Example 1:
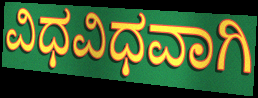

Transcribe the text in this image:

ವಿಧವಿಧವಾಗಿ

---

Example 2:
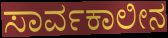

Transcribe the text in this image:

ಸಾರ್ವಕಾಲೀನ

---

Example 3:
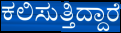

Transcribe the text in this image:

ಕಲಿಸುತ್ತಿದ್ದಾರೆ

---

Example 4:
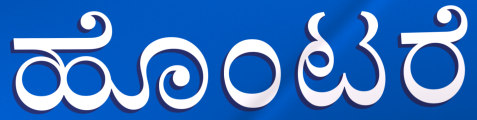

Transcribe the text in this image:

ಹೊಂಟರೆ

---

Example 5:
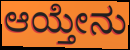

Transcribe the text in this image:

ಆಯ್ತೇನು